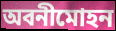
অবনীমোহন